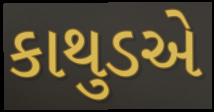
કાથુડએ